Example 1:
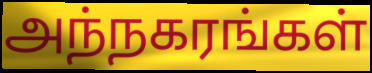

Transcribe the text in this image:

அந்நகரங்கள்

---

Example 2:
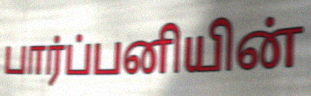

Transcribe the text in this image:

பார்ப்பனியின்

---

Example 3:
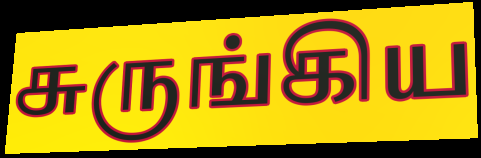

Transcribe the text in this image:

சுருங்கிய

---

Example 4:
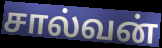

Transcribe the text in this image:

சால்வன்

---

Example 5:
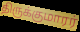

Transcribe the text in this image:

திருக்குமாரர்